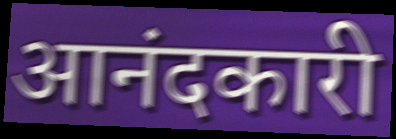
आनंदकारी